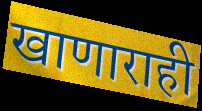
खाणाराही